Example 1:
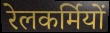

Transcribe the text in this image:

रेलकर्मियों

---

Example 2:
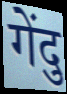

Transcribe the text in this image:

गेंदु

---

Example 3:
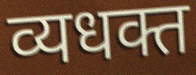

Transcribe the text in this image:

व्यधक्त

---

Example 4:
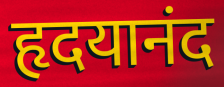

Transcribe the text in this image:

हृदयानंद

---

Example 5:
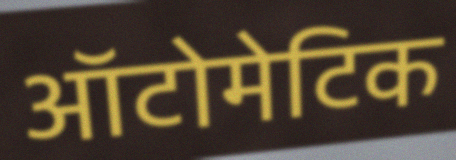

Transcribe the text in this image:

ऑटोमेटिक